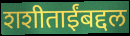
शशीताईंबद्दल